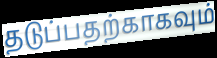
தடுப்பதற்காகவும்